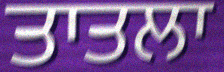
ਤਾਤਲਾ